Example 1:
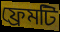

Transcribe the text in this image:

ফ্রেমটি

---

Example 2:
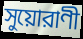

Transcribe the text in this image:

সুয়োরাণী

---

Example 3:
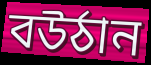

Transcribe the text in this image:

বউঠান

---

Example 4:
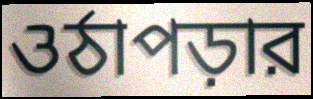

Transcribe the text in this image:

ওঠাপড়ার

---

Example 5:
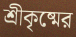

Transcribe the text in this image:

শ্রীকৃষ্মের